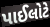
પાઈલોટે